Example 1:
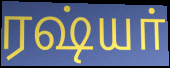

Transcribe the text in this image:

ரஷ்யர்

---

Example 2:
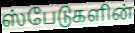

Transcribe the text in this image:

ஸ்பேடுகளின்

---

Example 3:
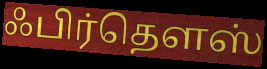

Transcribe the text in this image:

ஃபிர்தௌஸ்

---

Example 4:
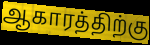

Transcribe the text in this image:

ஆகாரத்திற்கு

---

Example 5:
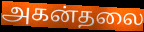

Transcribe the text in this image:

அகன்தலை